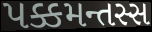
પક્કમન્તસ્સ